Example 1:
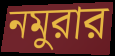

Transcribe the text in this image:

নমুরার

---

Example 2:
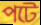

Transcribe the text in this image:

পটে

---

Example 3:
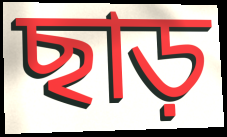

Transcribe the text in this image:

ছাড়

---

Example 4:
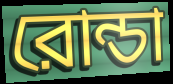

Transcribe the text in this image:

রোন্ডা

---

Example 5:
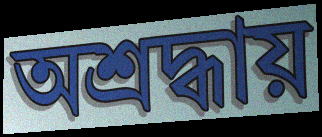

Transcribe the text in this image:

অশ্রদ্ধায়